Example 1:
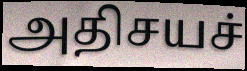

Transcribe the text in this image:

அதிசயச்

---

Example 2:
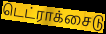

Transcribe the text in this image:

டெட்ராக்சைடு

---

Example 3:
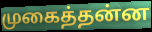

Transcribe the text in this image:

முகைத்தன்ன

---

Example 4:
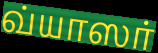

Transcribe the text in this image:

வ்யாஸர்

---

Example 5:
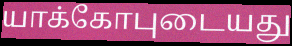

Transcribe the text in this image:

யாக்கோபுடையது